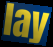
lay